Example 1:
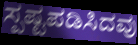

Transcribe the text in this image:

ಸ್ಪಷ್ಟಪಡಿಸಿದವು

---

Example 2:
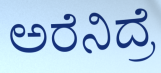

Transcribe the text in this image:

ಅರೆನಿದ್ರೆ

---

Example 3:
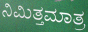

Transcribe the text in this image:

ನಿಮಿತ್ತಮಾತ್ರ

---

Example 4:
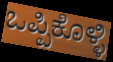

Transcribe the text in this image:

ಒಪ್ಪಿಕೊಳ್ಳಿ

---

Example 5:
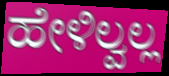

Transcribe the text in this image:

ಹೇಳಿಲ್ವಲ್ಲ